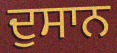
ਦੁਸਾਨ